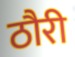
ठौरी